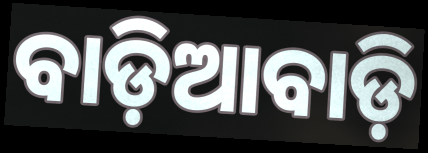
ବାଡ଼ିଆବାଡ଼ି